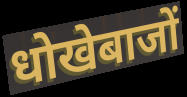
धोखेबाजों